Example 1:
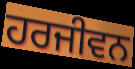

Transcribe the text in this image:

ਹਰਜੀਵਨ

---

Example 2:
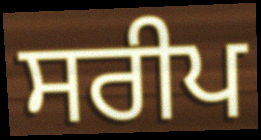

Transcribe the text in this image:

ਸਰੀਪ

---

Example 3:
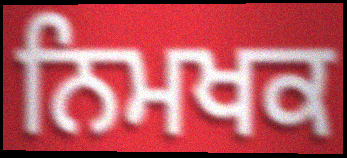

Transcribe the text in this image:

ਨਿਮਖਕ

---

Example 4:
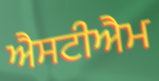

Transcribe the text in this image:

ਐਸਟੀਐਮ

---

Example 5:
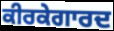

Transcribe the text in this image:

ਕੀਰਕੇਗਾਰਦ